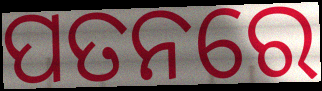
ପତନରେ